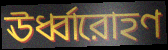
ঊর্ধ্বারোহণ